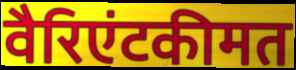
वैरिएंटकीमत